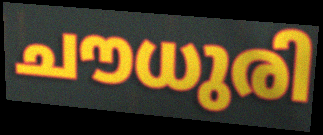
ചൗധുരി